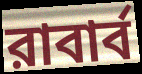
রাবার্ব